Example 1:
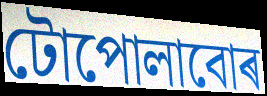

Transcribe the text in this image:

টোপোলাবোৰ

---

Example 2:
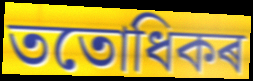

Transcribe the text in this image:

ততোধিকৰ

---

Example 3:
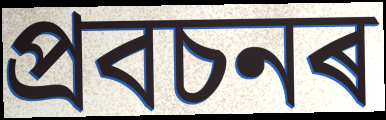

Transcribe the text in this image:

প্ৰবচনৰ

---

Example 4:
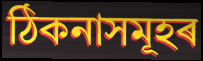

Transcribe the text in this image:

ঠিকনাসমূহৰ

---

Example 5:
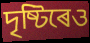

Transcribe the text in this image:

দৃষ্টিৰেও